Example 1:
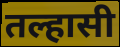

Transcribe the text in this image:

तल्हासी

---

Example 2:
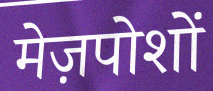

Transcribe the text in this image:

मेज़पोशों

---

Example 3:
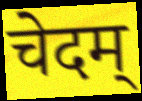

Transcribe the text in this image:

चेदम्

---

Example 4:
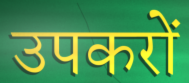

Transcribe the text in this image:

उपकरों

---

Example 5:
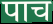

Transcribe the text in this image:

पाच